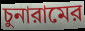
চুনারামের